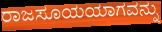
ರಾಜಸೂಯಯಾಗವನ್ನು